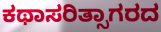
ಕಥಾಸರಿತ್ಸಾಗರದ